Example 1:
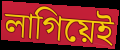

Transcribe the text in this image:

লাগিয়েই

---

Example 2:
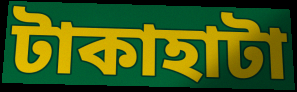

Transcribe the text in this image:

টাকাহাটা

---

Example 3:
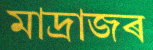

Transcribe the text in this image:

মাদ্ৰাজৰ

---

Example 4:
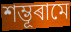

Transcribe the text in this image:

শম্ভূৰামে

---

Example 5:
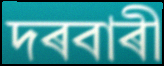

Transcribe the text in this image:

দৰবাৰী